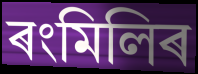
ৰংমিলিৰ